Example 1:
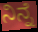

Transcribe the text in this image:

ನಿನ್ನೆ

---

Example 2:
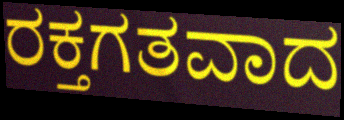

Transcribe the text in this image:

ರಕ್ತಗತವಾದ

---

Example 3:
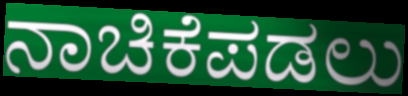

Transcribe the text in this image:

ನಾಚಿಕೆಪಡಲು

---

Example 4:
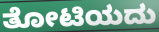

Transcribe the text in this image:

ತೋಟಿಯದು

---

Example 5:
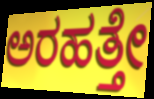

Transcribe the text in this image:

ಅರಹತ್ತೇ